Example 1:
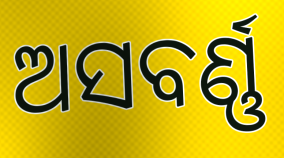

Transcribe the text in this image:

ଅସବର୍ଣ୍ଣ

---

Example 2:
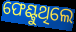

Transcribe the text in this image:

ଫେଣ୍ଟୁଥିଲେ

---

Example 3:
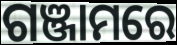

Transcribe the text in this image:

ଗଞ୍ଜାମରେ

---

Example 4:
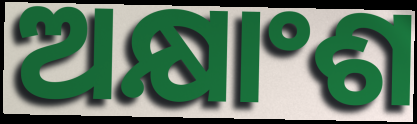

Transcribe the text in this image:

ଅକ୍ଷାଂଶ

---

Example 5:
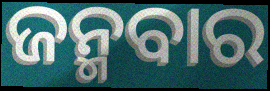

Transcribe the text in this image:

ଜନ୍ମବାର